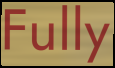
Fully